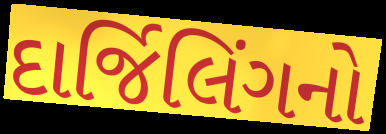
દાર્જિલિંગનો